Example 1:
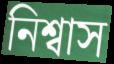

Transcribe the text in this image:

নিশ্বাস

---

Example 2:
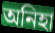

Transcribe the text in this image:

অনিহা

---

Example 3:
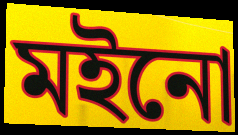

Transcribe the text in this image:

মইনো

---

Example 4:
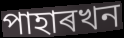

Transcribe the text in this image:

পাহাৰখন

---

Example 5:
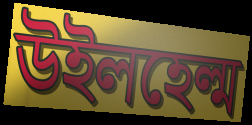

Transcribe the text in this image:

উইলহেল্ম